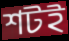
শটই